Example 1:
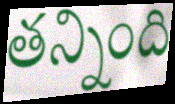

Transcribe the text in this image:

తన్నింది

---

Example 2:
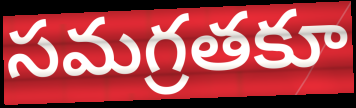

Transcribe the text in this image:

సమగ్రతకూ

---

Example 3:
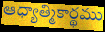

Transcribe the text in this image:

ఆధ్యాత్మికార్థము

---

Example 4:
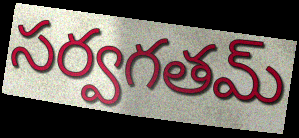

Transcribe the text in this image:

సర్వగతమ్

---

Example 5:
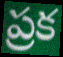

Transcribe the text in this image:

ప్రక